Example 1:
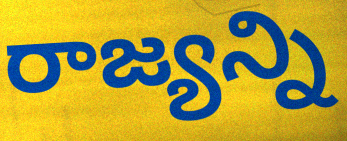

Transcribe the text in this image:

రాజ్యన్ని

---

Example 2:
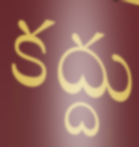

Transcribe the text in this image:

కద్దు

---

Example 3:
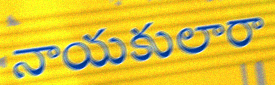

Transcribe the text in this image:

నాయకులారా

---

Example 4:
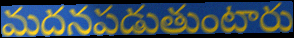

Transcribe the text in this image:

మదనపడుతుంటారు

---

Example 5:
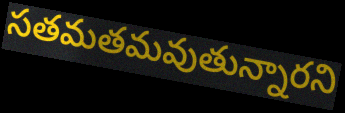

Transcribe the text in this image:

సతమతమవుతున్నారని